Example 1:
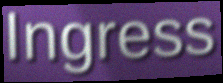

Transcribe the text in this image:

Ingress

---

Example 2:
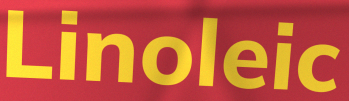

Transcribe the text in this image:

Linoleic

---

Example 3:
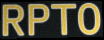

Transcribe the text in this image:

RPTO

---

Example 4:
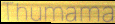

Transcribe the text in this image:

Thumama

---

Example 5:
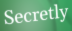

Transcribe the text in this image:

Secretly